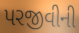
પરજીવીની